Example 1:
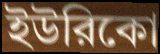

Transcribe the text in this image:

ইউরিকো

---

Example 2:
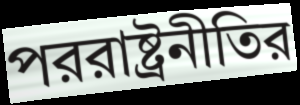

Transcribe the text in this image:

পররাষ্ট্রনীতির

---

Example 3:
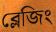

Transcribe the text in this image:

ব্লেজিং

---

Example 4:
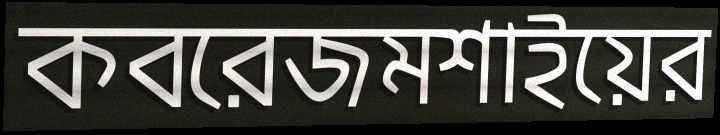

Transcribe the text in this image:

কবরেজমশাইয়ের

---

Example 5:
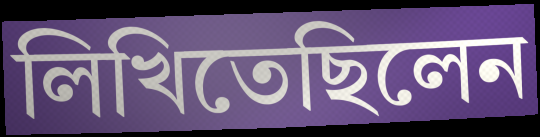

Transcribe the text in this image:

লিখিতেছিলেন